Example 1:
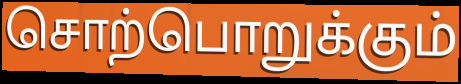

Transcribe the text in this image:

சொற்பொறுக்கும்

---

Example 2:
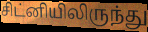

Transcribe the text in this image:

சிட்னியிலிருந்து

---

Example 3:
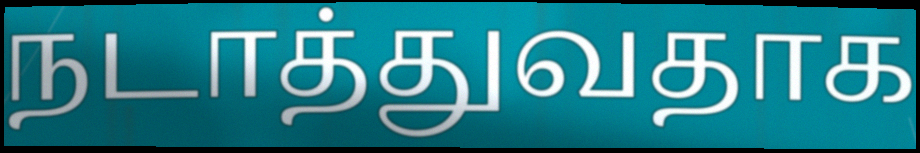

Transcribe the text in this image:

நடாத்துவதாக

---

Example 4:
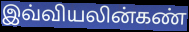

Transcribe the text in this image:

இவ்வியலின்கண்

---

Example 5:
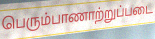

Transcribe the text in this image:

பெரும்பாணாற்றுப்படை